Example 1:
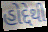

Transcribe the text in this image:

હોદ્દેથી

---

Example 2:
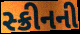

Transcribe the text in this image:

સ્ક્રીનની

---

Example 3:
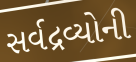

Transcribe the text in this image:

સર્વદ્રવ્યોની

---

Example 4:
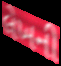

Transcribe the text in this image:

લેખની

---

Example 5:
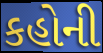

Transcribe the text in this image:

કહોની